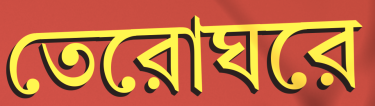
তেরোঘরে